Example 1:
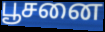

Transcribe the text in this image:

பூசனை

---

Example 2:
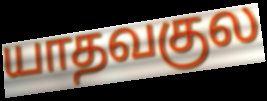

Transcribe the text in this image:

யாதவகுல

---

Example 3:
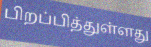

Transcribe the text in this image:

பிறப்பித்துள்ளது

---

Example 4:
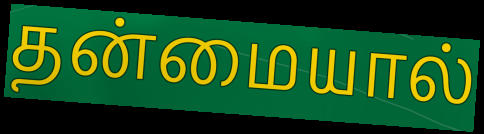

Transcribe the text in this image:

தன்மையால்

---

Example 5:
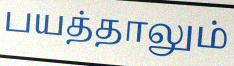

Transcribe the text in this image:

பயத்தாலும்